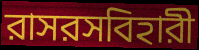
রাসরসবিহারী